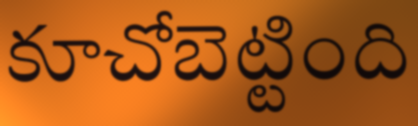
కూచోబెట్టింది